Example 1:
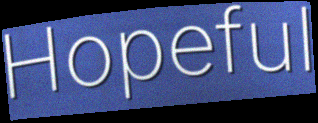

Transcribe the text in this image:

Hopeful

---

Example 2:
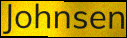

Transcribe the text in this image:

Johnsen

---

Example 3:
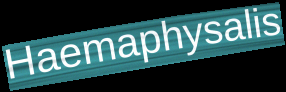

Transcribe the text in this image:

Haemaphysalis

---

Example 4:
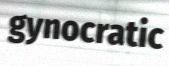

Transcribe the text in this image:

gynocratic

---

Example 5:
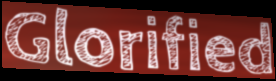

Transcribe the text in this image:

Glorified